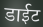
डाईट